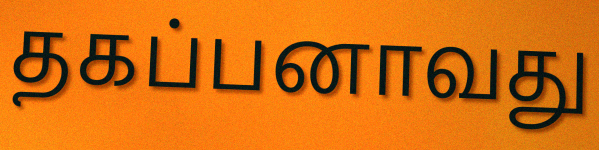
தகப்பனாவது